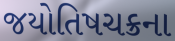
જયોતિષચક્રના